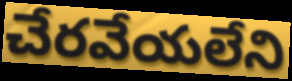
చేరవేయలేని